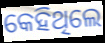
କେହିଥିଲେ